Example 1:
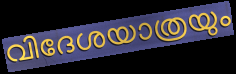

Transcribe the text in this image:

വിദേശയാത്രയും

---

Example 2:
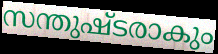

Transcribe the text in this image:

സന്തുഷ്ടരാകും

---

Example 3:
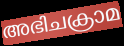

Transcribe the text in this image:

അഭിചക്രാമ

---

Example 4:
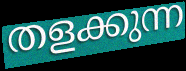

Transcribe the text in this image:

തളക്കുന്ന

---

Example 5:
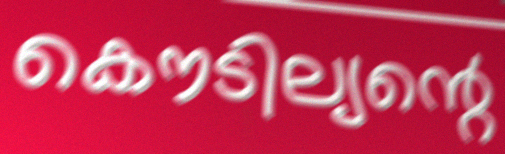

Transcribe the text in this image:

കൌടില്യന്റെ